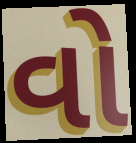
વો